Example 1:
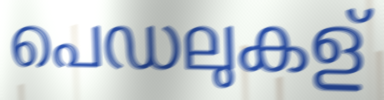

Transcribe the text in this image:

പെഡലുകള്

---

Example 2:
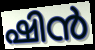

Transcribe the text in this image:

ഷിൻ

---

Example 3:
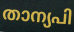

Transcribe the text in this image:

താന്യപി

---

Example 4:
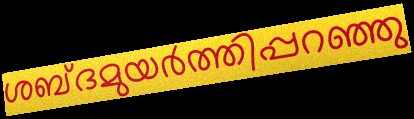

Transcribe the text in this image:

ശബ്ദമുയർത്തിപ്പറഞ്ഞു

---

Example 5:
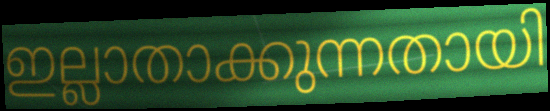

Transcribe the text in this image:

ഇല്ലാതാക്കുന്നതായി